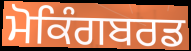
ਮੋਕਿੰਗਬਰਡ